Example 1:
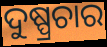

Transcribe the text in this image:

ଦୁଷ୍ପ୍ରଚାର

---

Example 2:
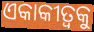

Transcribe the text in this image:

ଏକାକୀତ୍ଵକୁ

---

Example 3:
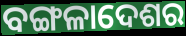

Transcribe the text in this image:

ବଙ୍ଗଳାଦେଶର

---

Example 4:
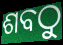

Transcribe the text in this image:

ଶବଠୁ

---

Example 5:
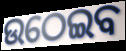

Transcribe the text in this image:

ଉଠେଇବ